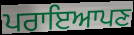
ਪਰਾਇਆਪਣ